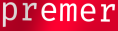
premer